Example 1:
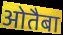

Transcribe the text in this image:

ओतैबा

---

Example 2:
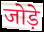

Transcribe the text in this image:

जोड़े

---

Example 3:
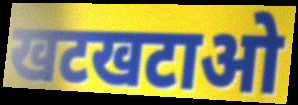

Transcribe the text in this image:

खटखटाओ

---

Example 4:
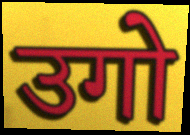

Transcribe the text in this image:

उगो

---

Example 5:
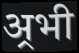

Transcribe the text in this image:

अ्रभी